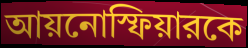
আয়নোস্ফিয়ারকে